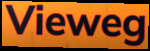
Vieweg